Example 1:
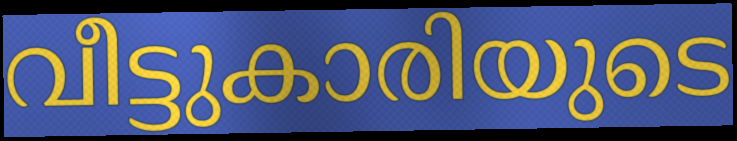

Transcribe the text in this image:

വീട്ടുകാരിയുടെ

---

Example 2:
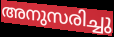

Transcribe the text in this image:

അനുസരിച്ചു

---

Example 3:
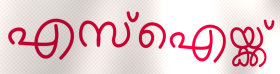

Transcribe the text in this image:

എസ്ഐയ്ക്ക്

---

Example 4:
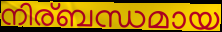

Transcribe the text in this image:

നിര്ബന്ധമായ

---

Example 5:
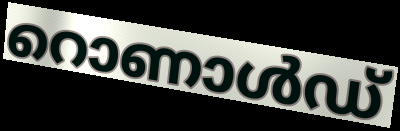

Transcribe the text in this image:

റൊണാൾഡ്